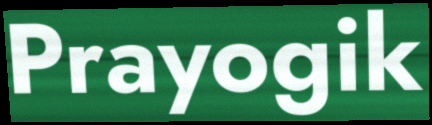
Prayogik